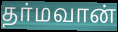
தர்மவான்